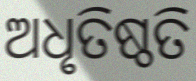
ଅଧୃତିଷ୍ଠତି